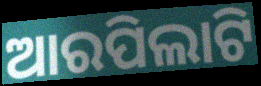
ଆରପିଲାଟି